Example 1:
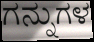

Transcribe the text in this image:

ಗನ್ನುಗಳ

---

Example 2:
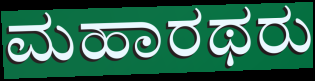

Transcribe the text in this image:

ಮಹಾರಥರು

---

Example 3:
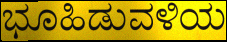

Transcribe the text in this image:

ಭೂಹಿಡುವಳಿಯ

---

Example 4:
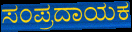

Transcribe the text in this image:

ಸಂಪ್ರದಾಯಕ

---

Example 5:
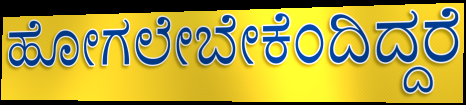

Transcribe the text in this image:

ಹೋಗಲೇಬೇಕೆಂದಿದ್ದರೆ